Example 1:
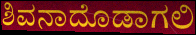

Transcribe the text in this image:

ಶಿವನಾದೊಡಾಗಲಿ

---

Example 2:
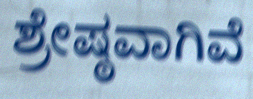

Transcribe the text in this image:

ಶ್ರೇಷ್ಠವಾಗಿವೆ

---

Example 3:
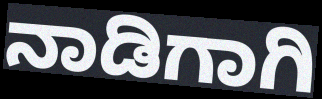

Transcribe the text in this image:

ನಾಡಿಗಾಗಿ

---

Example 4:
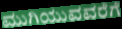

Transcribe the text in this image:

ಮುಗಿಯುವವರೆಗೆ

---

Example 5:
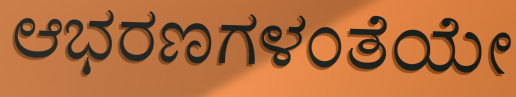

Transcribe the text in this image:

ಆಭರಣಗಳಂತೆಯೇ